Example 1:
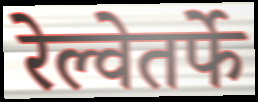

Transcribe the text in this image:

रेल्वेतर्फे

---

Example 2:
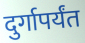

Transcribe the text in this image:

दुर्गापर्यंत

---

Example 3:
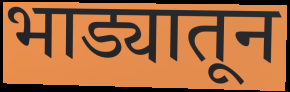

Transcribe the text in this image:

भाड्यातून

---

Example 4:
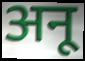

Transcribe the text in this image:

अनू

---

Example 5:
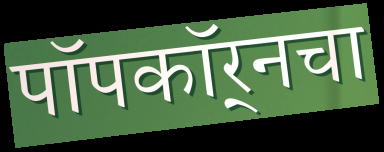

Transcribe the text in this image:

पॉपकॉर्नचा